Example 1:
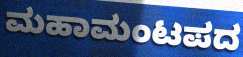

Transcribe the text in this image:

ಮಹಾಮಂಟಪದ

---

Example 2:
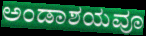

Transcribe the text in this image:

ಅಂಡಾಶಯವೂ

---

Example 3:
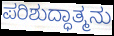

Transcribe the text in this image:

ಪರಿಶುದ್ಧಾತ್ಮನು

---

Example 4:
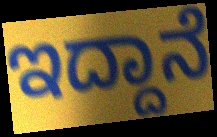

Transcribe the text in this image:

ಇದ್ದಾನೆ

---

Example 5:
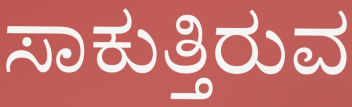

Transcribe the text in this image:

ಸಾಕುತ್ತಿರುವ